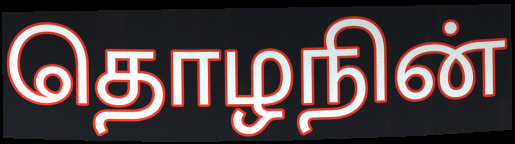
தொழநின்